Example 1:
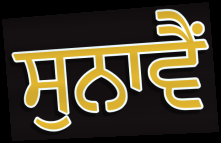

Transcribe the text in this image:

ਸੁਨਾਵੈਂ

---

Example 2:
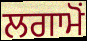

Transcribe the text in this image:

ਲਗਾਮੋਂ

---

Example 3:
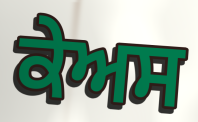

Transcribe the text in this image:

ਕੇਅਸ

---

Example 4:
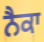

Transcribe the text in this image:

ਨੈਕਾ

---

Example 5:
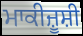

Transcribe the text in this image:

ਮਾਕੀਜ਼ੂਸ਼ੀ